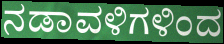
ನಡಾವಳಿಗಳಿಂದ